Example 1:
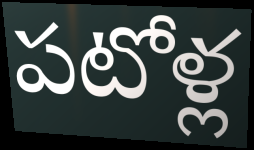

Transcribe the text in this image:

పటోళ్ల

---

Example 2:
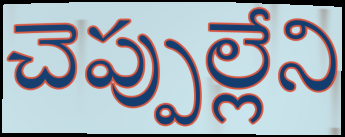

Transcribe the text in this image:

చెప్పుల్లేని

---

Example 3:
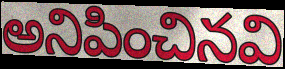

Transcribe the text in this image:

అనిపించినవి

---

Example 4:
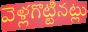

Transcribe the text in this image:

వెళ్లగొట్టినట్లు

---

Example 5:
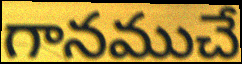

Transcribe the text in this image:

గానముచే